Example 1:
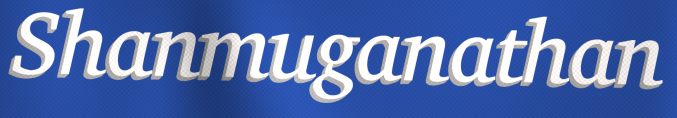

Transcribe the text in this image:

Shanmuganathan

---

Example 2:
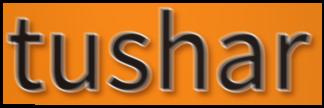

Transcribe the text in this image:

tushar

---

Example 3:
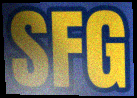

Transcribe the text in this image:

SFG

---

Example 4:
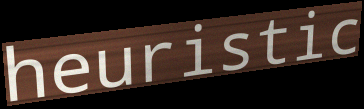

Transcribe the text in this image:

heuristic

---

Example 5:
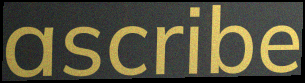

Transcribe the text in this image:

ascribe